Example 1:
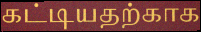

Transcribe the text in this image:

கட்டியதற்காக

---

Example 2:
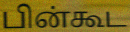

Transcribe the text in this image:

பின்கூட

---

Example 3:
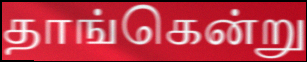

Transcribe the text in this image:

தாங்கென்று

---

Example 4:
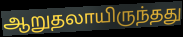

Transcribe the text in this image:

ஆறுதலாயிருந்தது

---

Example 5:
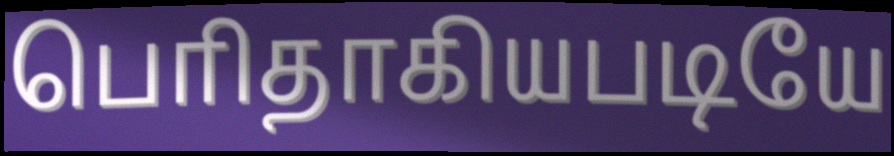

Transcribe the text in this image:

பெரிதாகியபடியே